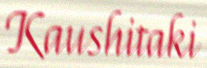
Kaushitaki